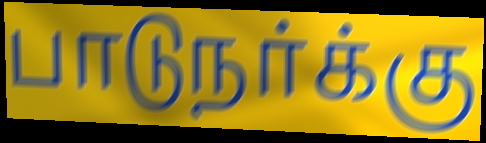
பாடுநர்க்கு